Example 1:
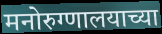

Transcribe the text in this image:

मनोरुग्णालयाच्या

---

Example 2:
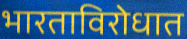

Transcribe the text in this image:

भारताविरोधात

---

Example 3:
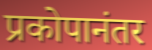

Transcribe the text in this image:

प्रकोपानंतर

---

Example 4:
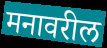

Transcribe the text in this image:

मनावरील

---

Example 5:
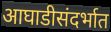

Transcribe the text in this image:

आघाडीसंदर्भात